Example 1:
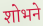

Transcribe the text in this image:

शोभने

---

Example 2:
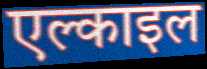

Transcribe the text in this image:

एल्काइल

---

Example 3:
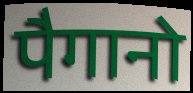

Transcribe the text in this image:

पैगानो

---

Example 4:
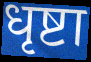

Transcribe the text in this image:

धृष्टा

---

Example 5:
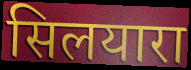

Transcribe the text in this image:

सिलयारा